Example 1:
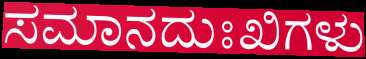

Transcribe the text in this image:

ಸಮಾನದುಃಖಿಗಳು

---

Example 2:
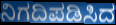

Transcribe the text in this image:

ನಿಗದಿಪಡಿಸಿದ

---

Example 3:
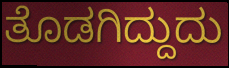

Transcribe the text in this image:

ತೊಡಗಿದ್ದುದು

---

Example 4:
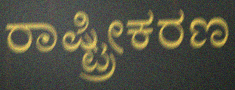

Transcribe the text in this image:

ರಾಷ್ಟ್ರೀಕರಣ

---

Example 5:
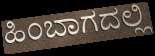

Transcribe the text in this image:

ಹಿಂಬಾಗದಲ್ಲಿ